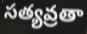
సత్యవ్రతా